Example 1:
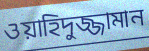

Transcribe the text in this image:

ওয়াহিদুজ্জামান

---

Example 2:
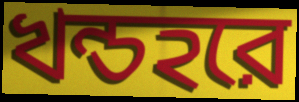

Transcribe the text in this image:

খন্ডহরে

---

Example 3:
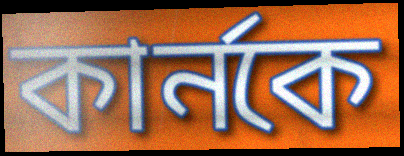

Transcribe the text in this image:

কার্নকে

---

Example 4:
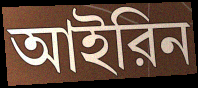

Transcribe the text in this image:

আইরিন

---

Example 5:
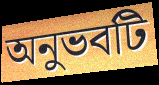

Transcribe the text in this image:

অনুভবটি